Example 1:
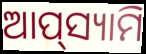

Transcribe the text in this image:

ଆପ୍‌ସ୍ୟାମି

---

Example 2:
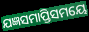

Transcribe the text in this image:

ଯଜ୍ଞସମାପ୍ତିସମୟେ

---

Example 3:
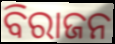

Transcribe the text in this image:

ବିରାଜନ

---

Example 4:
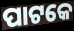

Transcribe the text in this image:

ପାଟକେ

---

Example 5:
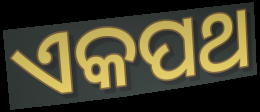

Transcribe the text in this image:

ଏକପଥ